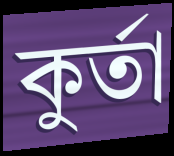
কুৰ্তা